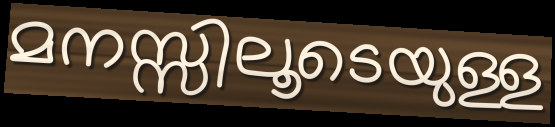
മനസ്സിലൂടെയുള്ള